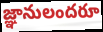
జ్ఞానులందరూ